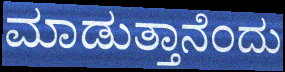
ಮಾಡುತ್ತಾನೆಂದು